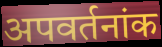
अपवर्तनांक